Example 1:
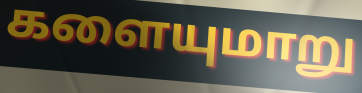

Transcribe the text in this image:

களையுமாறு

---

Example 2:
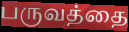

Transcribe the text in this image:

பருவத்தை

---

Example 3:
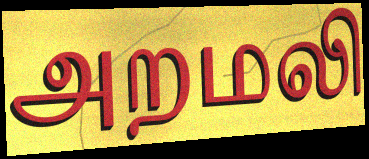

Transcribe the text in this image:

அறமலி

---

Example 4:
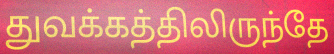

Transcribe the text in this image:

துவக்கத்திலிருந்தே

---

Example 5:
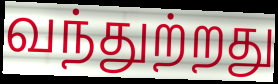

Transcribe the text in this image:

வந்துற்றது